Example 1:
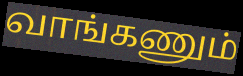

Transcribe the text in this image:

வாங்கணும்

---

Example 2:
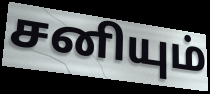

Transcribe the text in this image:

சனியும்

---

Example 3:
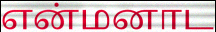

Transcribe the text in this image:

என்மனாட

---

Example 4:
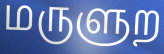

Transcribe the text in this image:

மருளுற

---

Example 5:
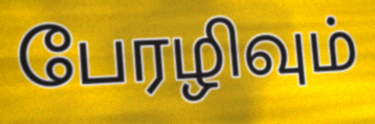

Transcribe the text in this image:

பேரழிவும்